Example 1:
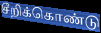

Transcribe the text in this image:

சீறிக்கொண்டு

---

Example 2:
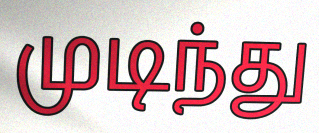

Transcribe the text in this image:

முடிந்து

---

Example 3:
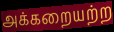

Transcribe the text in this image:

அக்கறையற்ற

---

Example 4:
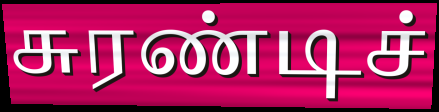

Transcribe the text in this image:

சுரண்டிச்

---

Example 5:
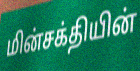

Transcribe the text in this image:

மின்சக்தியின்